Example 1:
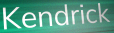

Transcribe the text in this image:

Kendrick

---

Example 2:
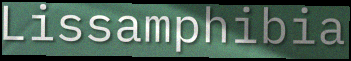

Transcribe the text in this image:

Lissamphibia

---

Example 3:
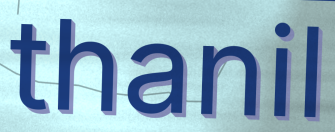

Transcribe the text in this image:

thanil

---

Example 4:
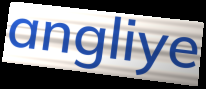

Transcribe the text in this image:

angliye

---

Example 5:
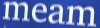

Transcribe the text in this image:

meam